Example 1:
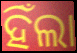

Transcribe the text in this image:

ହିଁଲା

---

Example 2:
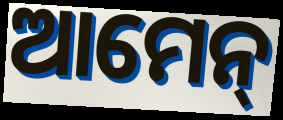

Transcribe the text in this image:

ଆମେନ୍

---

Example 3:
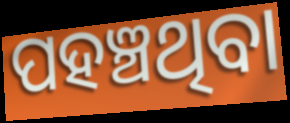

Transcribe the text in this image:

ପହଞ୍ଚଥିବା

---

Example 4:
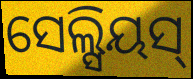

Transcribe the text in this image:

ସେଲ୍ସିୟସ୍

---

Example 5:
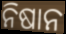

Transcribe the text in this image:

ନିଷାନ